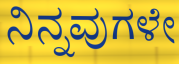
ನಿನ್ನವುಗಳೇ